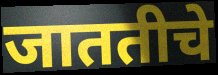
जाततीचे